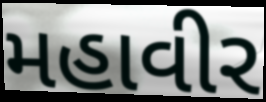
મહાવીર